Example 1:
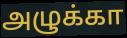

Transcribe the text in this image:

அழுக்கா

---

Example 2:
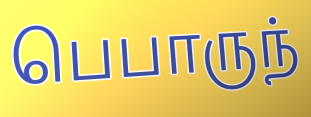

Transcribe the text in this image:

பெபாருந்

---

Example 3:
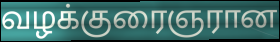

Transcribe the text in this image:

வழக்குரைஞரான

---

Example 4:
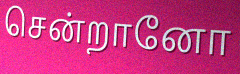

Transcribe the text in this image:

சென்றானோ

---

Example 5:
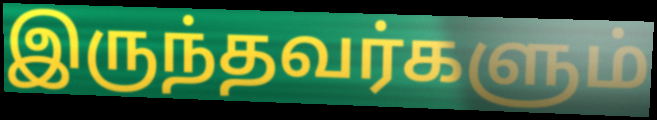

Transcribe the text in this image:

இருந்தவர்களும்